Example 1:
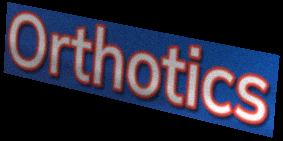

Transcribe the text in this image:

Orthotics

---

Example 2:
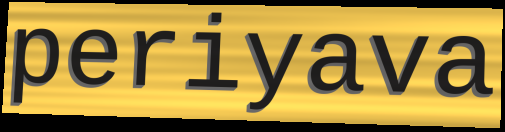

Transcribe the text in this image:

periyava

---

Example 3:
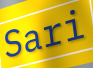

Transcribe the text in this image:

Sari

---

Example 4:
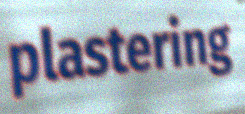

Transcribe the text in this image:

plastering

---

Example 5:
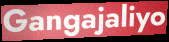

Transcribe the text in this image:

Gangajaliyo